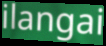
ilangai